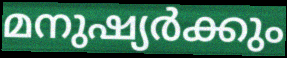
മനുഷ്യർക്കും